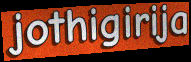
jothigirija